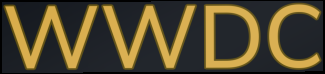
WWDC